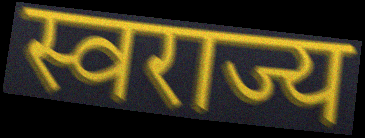
स्वराज्य